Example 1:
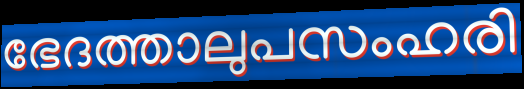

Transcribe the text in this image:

ഭേദത്താലുപസംഹരി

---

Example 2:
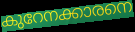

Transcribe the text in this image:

കുറേനക്കാരനെ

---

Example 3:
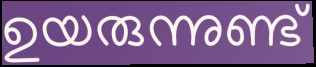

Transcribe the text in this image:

ഉയരുന്നുണ്ട്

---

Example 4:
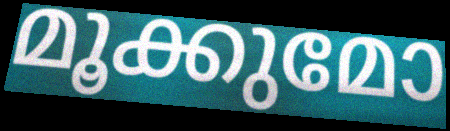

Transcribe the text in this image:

മൂക്കുമോ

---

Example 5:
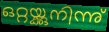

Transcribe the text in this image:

ഒറ്റയ്ക്കുനിന്നു്